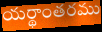
యర్థాంతరము